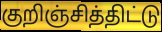
குறிஞ்சித்திட்டு